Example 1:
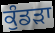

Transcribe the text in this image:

ਕੁੰਡੜਾ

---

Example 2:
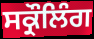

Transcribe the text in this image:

ਸਕ੍ਰੌਲਿੰਗ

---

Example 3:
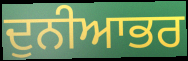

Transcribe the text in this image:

ਦੁਨੀਆਭਰ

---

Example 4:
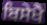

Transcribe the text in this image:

ਬਿਸੇਖੈ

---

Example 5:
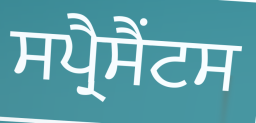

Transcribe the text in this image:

ਸਪ੍ਰੈਸੈਂਟਸ